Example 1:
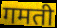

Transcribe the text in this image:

गमती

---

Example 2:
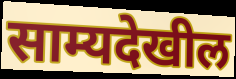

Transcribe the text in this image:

साम्यदेखील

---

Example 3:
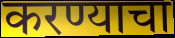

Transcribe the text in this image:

करण्याचा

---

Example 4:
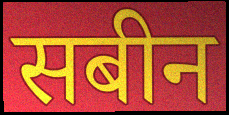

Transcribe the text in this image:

सबीन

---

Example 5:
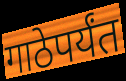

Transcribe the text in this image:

गाठेपर्यंत